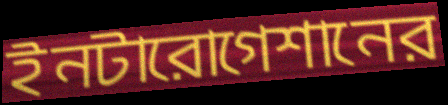
ইনটারোগেশানের